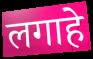
लगाहे